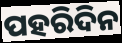
ପହରିଦିନ